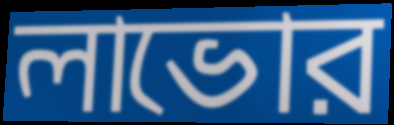
লাভোর